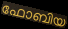
ഫോബിയ